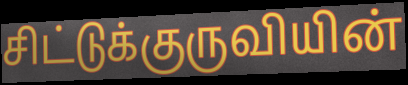
சிட்டுக்குருவியின்